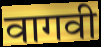
वागवी